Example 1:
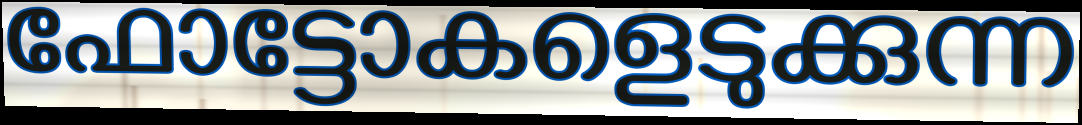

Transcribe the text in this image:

ഫോട്ടോകളെടുക്കുന്ന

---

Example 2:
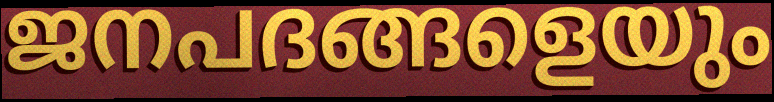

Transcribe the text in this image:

ജനപദങ്ങളെയും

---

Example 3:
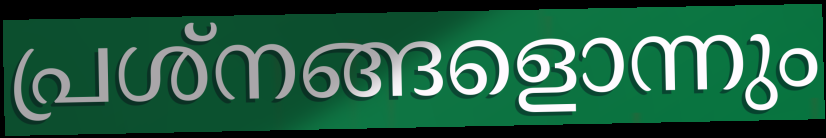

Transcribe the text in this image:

പ്രശ്നങ്ങളൊന്നും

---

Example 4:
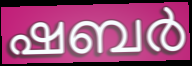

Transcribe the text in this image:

ഷബർ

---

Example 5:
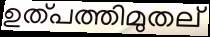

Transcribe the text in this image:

ഉത്പത്തിമുതല്